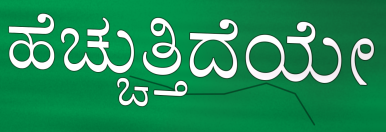
ಹೆಚ್ಚುತ್ತಿದೆಯೇ